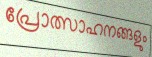
പ്രോത്സാഹനങ്ങളും